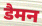
डैमन